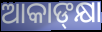
ଆକାଙ୍‌କ୍ଷା